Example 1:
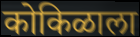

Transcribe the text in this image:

कोकिळाला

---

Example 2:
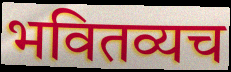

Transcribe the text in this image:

भवितव्यच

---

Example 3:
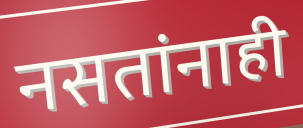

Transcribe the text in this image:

नसतांनाही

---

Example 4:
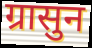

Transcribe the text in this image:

ग्रासुन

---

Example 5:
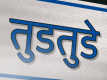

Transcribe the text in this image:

तुडतुडे